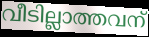
വീടില്ലാത്തവന്